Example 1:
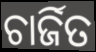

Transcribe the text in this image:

ଚାର୍ଜିତ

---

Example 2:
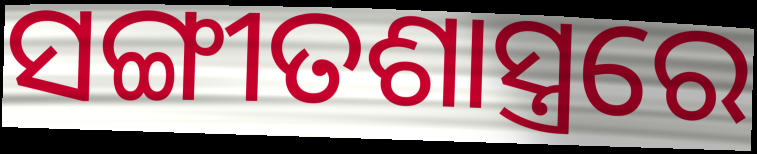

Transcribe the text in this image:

ସଙ୍ଗୀତଶାସ୍ତ୍ରରେ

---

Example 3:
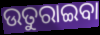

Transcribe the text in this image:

ଉତୁରାଇବା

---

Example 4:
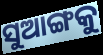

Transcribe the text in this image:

ସୁଆଙ୍ଗକୁ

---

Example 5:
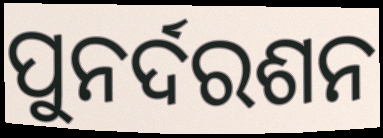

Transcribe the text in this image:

ପୁନର୍ଦରଶନ